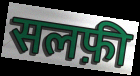
सलफ़ी